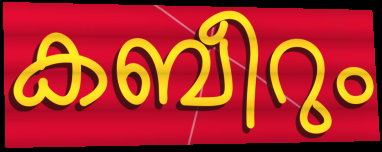
കബീറും